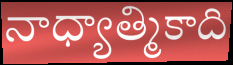
నాధ్యాత్మికాది